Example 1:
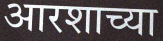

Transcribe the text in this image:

आरशाच्या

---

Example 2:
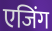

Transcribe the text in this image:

एजिंग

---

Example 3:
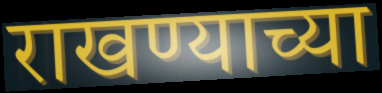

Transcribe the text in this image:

राखण्याच्या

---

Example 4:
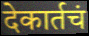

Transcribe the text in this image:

देकार्तचं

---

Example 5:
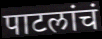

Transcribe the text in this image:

पाटलांचं